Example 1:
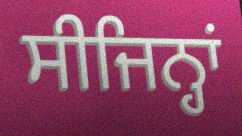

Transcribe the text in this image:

ਸੀਜਿਨ੍ਹਾਂ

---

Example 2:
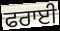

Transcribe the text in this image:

ਫਰਾਈ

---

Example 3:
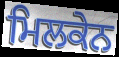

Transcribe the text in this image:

ਮਿਲਕੇਨ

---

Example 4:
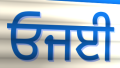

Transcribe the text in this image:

ਓਜਈ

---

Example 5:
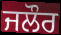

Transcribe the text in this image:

ਜਲੌਰ